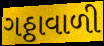
ગઠ્ઠાવાળી